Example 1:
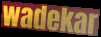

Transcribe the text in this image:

wadekar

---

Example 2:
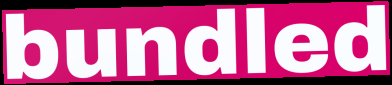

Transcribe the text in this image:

bundled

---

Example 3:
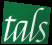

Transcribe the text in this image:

tals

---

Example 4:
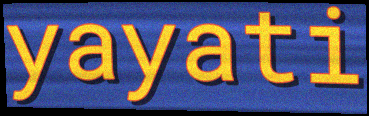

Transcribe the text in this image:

yayati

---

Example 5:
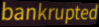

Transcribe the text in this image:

bankrupted